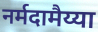
नर्मदामैय्या